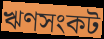
ঋণসংকট